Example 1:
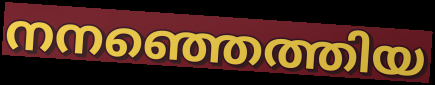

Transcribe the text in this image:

നനഞ്ഞെത്തിയ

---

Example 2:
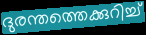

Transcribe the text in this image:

ദുരന്തത്തെക്കുറിച്ച്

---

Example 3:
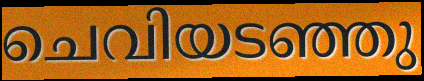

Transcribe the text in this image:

ചെവിയടഞ്ഞു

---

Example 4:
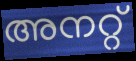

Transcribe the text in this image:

അനറ്റ്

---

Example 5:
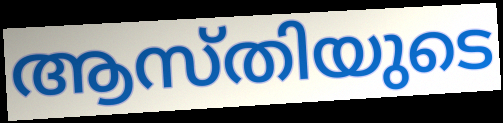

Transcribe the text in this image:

ആസ്തിയുടെ